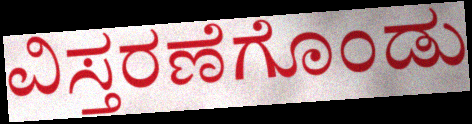
ವಿಸ್ತರಣೆಗೊಂಡು